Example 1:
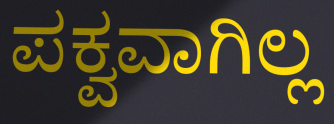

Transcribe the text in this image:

ಪಕ್ವವಾಗಿಲ್ಲ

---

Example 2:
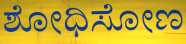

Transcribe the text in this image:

ಶೋಧಿಸೋಣ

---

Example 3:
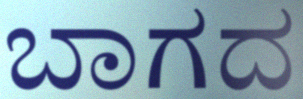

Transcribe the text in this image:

ಬಾಗದ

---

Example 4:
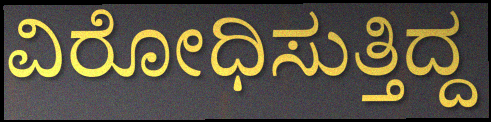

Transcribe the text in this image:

ವಿರೋಧಿಸುತ್ತಿದ್ದ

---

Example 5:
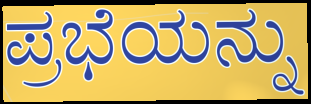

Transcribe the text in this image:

ಪ್ರಭೆಯನ್ನು